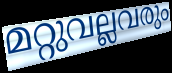
മറ്റുവല്ലവരും